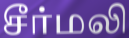
சீர்மலி